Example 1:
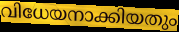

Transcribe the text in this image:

വിധേയനാക്കിയതും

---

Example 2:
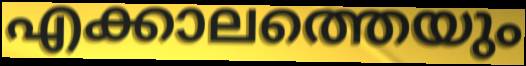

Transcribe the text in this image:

എക്കാലത്തെയും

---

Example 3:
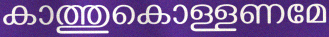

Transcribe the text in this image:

കാത്തുകൊള്ളണമേ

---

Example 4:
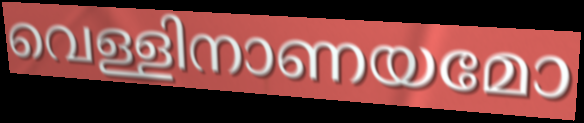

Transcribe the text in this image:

വെള്ളിനാണയമോ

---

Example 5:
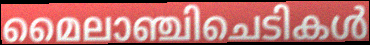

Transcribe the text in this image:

മൈലാഞ്ചിചെടികൾ